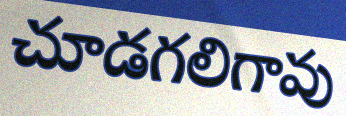
చూడగలిగావు